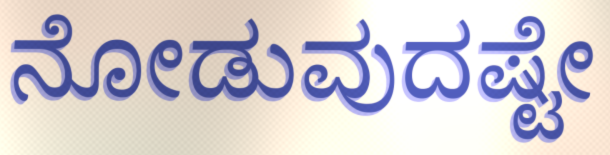
ನೋಡುವುದಷ್ಟೇ